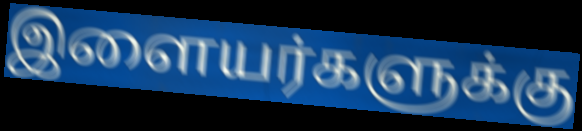
இளையர்களுக்கு